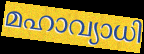
മഹാവ്യാധി